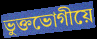
ভুক্তভোগীয়ে